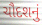
ચૌદશનું